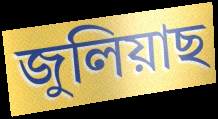
জুলিয়াছ